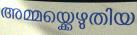
അമ്മയ്ക്കെഴുതിയ